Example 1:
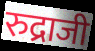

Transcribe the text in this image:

रुद्राजी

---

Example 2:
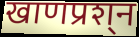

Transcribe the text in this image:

खाणप्रश्न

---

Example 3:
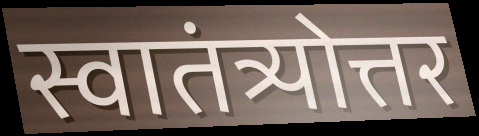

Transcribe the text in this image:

स्वातंत्र्योत्तर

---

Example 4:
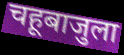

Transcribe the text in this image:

चहूबाजुला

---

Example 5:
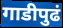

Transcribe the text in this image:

गाडीपुढं